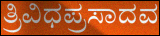
ತ್ರಿವಿಧಪ್ರಸಾದವ